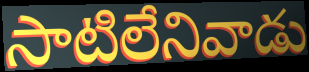
సాటిలేనివాడు